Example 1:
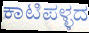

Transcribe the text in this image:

ಕಾಟಿಪಳ್ಳದ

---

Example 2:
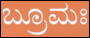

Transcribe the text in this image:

ಬ್ರೂಮಃ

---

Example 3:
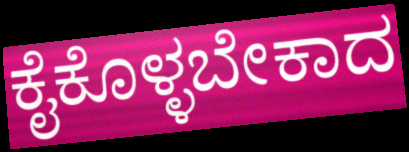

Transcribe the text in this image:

ಕೈಕೊಳ್ಳಬೇಕಾದ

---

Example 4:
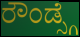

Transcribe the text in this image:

ರೌಂಡ್ಸ್ಗೆ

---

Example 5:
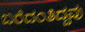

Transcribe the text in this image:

ಬರೆದಂತಿದ್ದವು